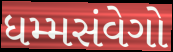
ધમ્મસંવેગો